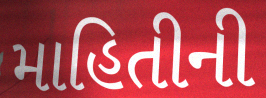
માહિતીની